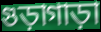
গুড়াগাড়া